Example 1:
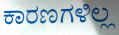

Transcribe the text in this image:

ಕಾರಣಗಳಿಲ್ಲ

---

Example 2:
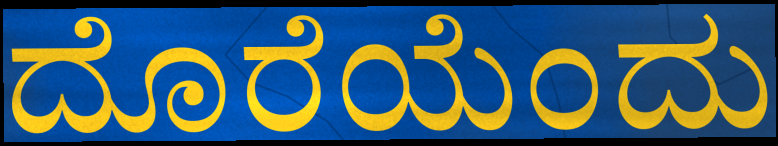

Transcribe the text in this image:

ದೊರೆಯೆಂದು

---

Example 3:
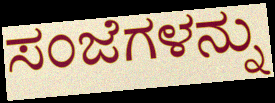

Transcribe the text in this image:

ಸಂಜೆಗಳನ್ನು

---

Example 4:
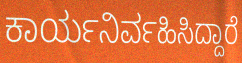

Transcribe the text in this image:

ಕಾರ್ಯನಿರ್ವಹಿಸಿದ್ದಾರೆ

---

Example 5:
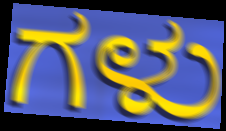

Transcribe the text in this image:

ಗಳು